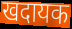
खदायक